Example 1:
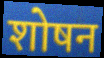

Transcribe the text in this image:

शोषन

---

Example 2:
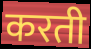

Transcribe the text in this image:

करती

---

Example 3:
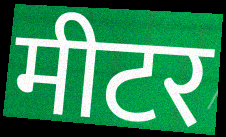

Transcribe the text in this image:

मीटर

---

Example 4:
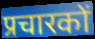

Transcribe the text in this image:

प्रचारकों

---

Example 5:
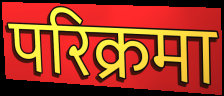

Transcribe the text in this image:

परिक्रमा